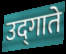
उद्‌गाते